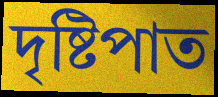
দৃষ্টিপাত